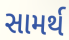
સામર્થ